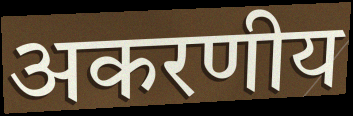
अकरणीय